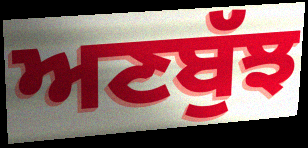
ਅਣਬੁੱਝ